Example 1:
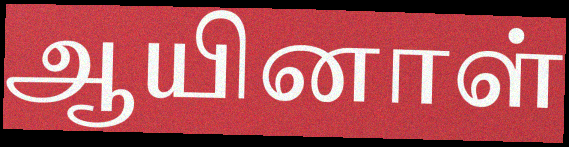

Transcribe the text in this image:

ஆயினாள்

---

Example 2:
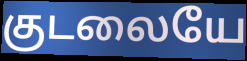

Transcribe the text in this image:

குடலையே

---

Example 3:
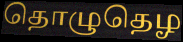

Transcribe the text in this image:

தொழுதெழ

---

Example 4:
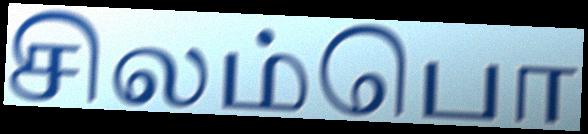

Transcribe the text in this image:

சிலம்பொ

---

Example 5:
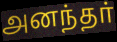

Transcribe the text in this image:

அனந்தர்